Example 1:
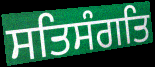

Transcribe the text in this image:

ਸਤਿਸੰਗਤਿ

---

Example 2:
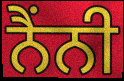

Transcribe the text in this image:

ਨੈਂਨੀ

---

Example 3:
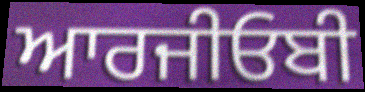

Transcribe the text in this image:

ਆਰਜੀਓਬੀ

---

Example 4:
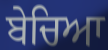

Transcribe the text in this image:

ਬੇਚਿਆ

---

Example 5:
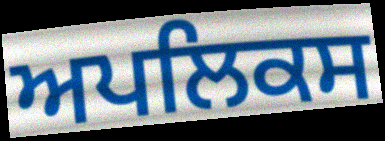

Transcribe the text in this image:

ਅਪਲਿਕਸ